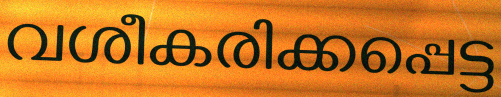
വശീകരിക്കപ്പെട്ട